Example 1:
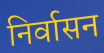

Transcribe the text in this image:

निर्वासन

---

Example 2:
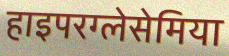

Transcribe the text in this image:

हाइपरग्लेसेमिया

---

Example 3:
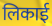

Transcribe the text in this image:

लिकाई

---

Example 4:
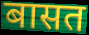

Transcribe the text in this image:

बासत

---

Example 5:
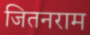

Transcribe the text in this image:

जितनराम